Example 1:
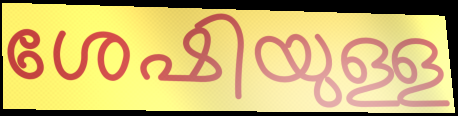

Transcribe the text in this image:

ശേഷിയുള്ള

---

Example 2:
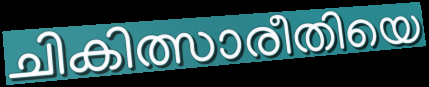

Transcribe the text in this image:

ചികിത്സാരീതിയെ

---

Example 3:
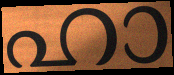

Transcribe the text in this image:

ഹാ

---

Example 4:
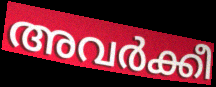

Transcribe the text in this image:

അവർക്കീ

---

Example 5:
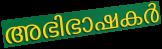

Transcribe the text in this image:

അഭിഭാഷകർ